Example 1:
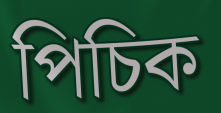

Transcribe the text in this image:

পিচিক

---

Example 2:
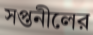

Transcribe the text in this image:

সপ্তনীলের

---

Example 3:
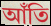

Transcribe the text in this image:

আঁতি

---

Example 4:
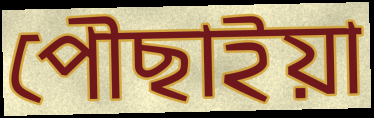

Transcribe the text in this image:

পৌছাইয়া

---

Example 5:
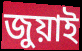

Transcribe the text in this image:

জুয়াই